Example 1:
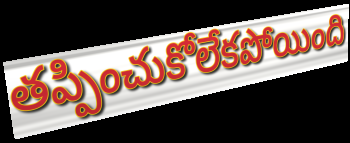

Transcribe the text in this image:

తప్పించుకోలేకపోయింది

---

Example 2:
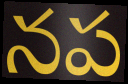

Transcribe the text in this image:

నప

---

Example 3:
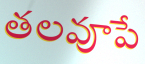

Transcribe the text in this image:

తలవూపే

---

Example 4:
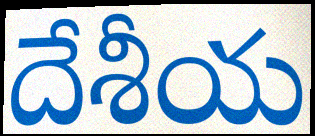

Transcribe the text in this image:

దేశీయ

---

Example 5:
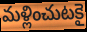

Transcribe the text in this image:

మళ్లించుటకై